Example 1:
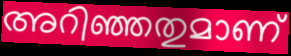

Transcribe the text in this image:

അറിഞ്ഞതുമാണ്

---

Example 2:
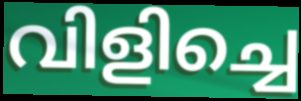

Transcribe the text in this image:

വിളിച്ചെ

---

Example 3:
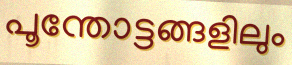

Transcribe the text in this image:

പൂന്തോട്ടങ്ങളിലും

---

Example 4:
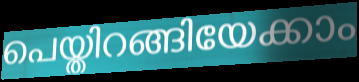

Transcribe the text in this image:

പെയ്തിറങ്ങിയേക്കാം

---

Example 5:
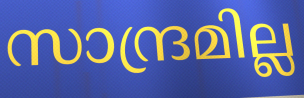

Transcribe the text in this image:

സാന്ദ്രമില്ല